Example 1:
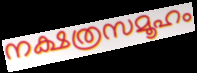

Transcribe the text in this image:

നക്ഷത്രസമൂഹം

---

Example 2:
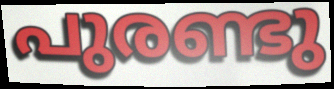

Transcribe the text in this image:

പുരണ്ടു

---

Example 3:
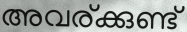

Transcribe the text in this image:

അവര്ക്കുണ്ട്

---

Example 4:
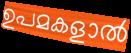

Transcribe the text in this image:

ഉപമകളാൽ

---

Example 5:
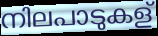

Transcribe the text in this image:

നിലപാടുകള്